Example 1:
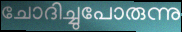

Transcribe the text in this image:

ചോദിച്ചുപോരുന്നു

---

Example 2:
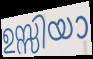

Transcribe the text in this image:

ഉസ്സിയാ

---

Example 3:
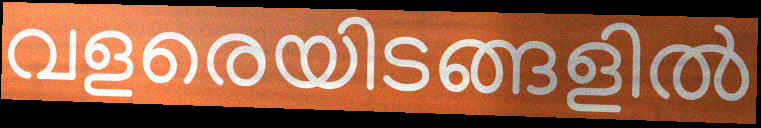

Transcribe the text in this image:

വളരെയിടങ്ങളിൽ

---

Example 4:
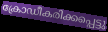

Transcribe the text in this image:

ക്രോഡീകരിക്കപ്പെട്ടു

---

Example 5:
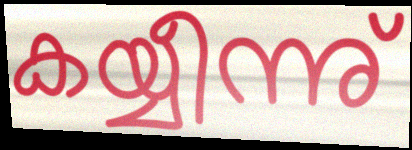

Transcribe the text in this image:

കയ്യീന്നു്